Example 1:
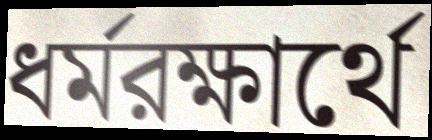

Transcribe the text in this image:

ধর্মরক্ষার্থে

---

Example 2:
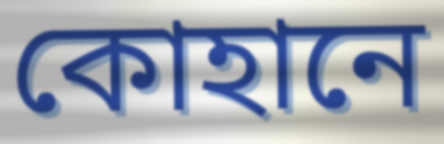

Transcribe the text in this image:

কোহানে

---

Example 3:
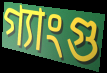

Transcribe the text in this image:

গ্যাংগু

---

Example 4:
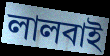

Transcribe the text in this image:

লালবাই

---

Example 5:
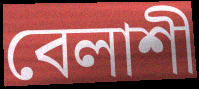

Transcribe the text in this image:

বেলাশী